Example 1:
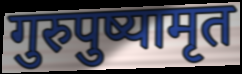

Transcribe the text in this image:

गुरुपुष्यामृत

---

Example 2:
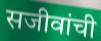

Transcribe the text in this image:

सजीवांची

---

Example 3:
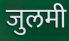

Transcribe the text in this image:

जुलमी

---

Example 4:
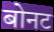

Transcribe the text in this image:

बोनट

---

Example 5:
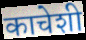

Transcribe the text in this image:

काचेशी